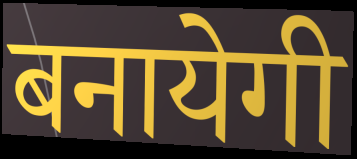
बनायेगी